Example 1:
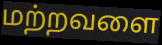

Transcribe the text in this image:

மற்றவளை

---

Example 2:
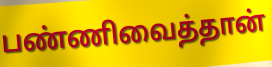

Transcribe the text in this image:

பண்ணிவைத்தான்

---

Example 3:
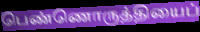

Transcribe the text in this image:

பெண்ணொருத்தியைப்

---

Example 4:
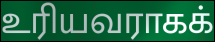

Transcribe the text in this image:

உரியவராகக்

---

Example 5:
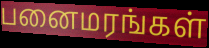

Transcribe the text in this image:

பனைமரங்கள்